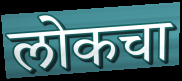
लोकचा